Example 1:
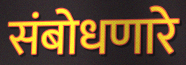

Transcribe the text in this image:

संबोधणारे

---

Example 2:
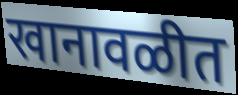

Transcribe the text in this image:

खानावळीत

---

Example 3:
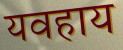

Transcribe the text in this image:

यवहाय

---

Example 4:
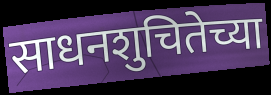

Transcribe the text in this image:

साधनशुचितेच्या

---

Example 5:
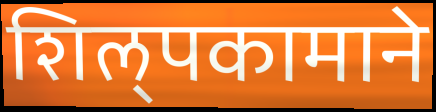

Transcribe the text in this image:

शिल्पकामाने